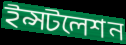
ইন্সটলেশন